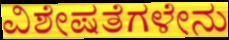
ವಿಶೇಷತೆಗಳೇನು